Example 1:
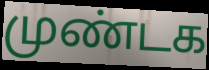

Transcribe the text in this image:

முண்டக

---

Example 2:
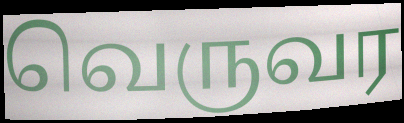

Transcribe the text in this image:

வெருவர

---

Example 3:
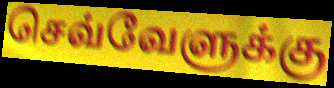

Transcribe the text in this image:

செவ்வேளுக்கு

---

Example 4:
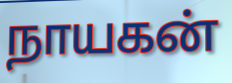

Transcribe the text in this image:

நாயகன்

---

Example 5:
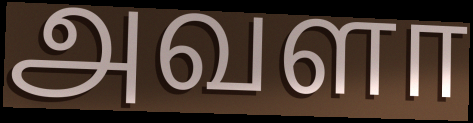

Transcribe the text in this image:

அவளா